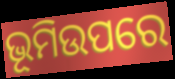
ଭୂମିଉପରେ